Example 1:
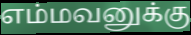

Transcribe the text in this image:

எம்மவனுக்கு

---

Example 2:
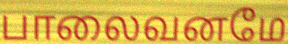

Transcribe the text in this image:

பாலைவனமே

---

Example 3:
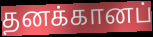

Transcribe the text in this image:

தனக்கானப்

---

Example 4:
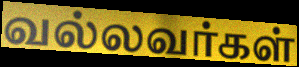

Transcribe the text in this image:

வல்லவர்கள்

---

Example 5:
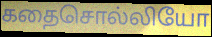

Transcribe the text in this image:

கதைசொல்லியோ